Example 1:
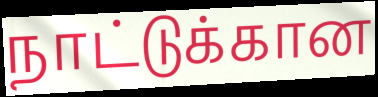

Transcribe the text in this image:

நாட்டுக்கான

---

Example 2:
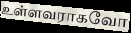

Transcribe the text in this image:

உள்ளவராகவோ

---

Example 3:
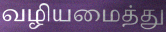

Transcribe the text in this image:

வழியமைத்து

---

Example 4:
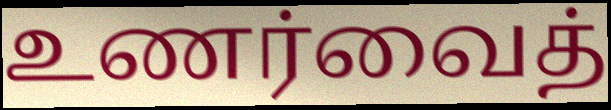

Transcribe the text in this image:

உணர்வைத்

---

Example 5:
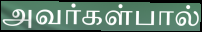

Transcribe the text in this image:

அவர்கள்பால்